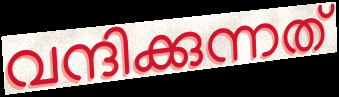
വന്ദിക്കുന്നത്